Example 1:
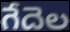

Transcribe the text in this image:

గేదెల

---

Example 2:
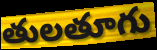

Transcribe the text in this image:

తులతూగు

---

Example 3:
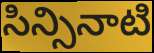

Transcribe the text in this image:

సిన్సినాటి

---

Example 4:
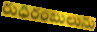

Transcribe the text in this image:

రుధిరంబులును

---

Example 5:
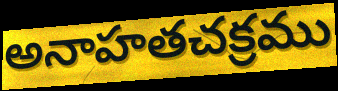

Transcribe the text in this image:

అనాహతచక్రము